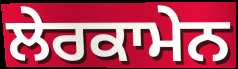
ਲੇਰਕਾਮੇਨ